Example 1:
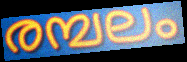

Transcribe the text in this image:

രമ്പലം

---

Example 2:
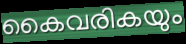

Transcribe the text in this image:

കൈവരികയും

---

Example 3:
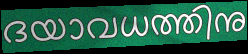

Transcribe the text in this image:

ദയാവധത്തിനു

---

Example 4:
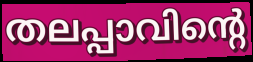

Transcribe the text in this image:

തലപ്പാവിന്റെ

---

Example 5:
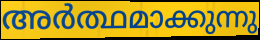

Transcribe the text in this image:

അർത്ഥമാക്കുന്നു